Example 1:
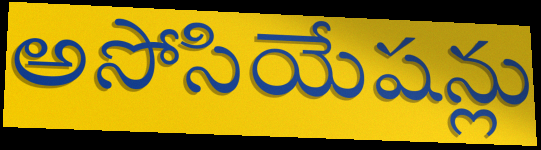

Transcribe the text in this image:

అసోసియేషన్లు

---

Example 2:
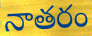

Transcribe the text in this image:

నాతరం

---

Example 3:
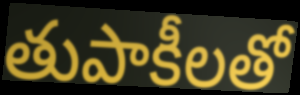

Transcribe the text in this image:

తుపాకీలతో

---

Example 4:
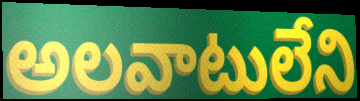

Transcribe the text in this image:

అలవాటులేని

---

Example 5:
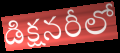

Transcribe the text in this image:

డిక్షనరీలో